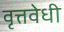
वृत्तवेधी